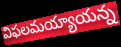
విఫలమయ్యాయన్న